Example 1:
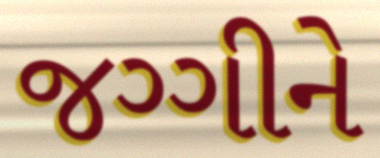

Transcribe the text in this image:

જગ્ગીને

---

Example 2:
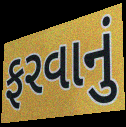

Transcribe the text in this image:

ફરવાનું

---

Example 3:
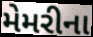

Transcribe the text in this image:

મેમરીના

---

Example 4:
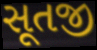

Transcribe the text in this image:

સૂતજી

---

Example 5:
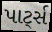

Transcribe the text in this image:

પાર્ટ્સ